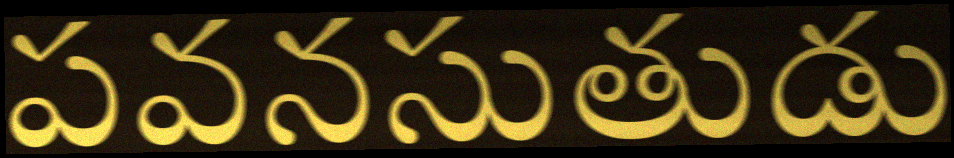
పవనసుతుడు